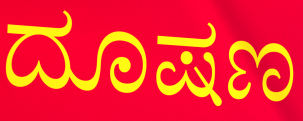
ದೂಷಣ